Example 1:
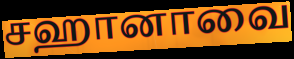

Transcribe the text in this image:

சஹானாவை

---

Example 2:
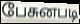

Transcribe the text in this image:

பேசுனபடி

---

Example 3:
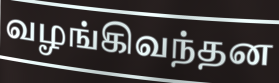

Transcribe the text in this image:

வழங்கிவந்தன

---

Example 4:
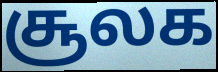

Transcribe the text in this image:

சூலக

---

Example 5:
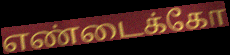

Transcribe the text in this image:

எண்டைக்கோ